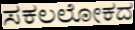
ಸಕಲಲೋಕದ